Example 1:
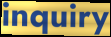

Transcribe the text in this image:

inquiry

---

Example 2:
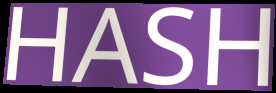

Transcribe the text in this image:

HASH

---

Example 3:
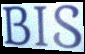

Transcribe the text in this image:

BIS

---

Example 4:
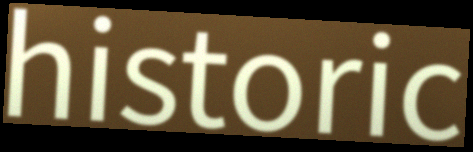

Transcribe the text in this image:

historic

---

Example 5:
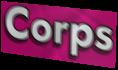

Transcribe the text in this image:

Corps